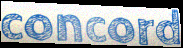
concord